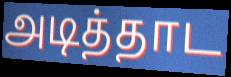
அடித்தாட